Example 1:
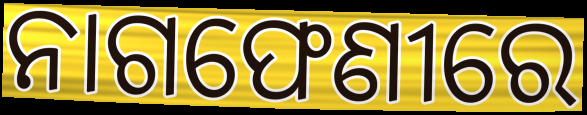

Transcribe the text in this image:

ନାଗଫେଣୀରେ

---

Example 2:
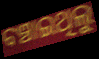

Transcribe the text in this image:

ବଞ୍ଚାଇଥିଲୁ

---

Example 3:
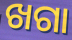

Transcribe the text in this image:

ଖଗା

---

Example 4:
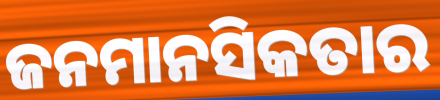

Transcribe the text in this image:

ଜନମାନସିକତାର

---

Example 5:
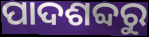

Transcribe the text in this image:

ପାଦଶବ୍ଦରୁ